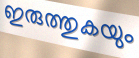
ഇരുത്തുകയും